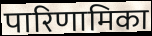
पारिणामिका